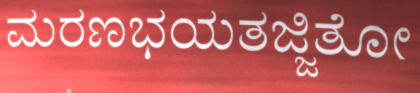
ಮರಣಭಯತಜ್ಜಿತೋ